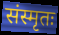
संस्मृतः